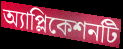
অ্যাপ্লিকেশনটি